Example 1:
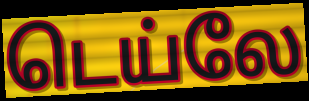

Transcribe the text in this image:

டெய்லே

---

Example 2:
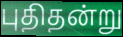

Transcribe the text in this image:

புதிதன்று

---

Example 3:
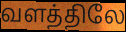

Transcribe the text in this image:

வளத்திலே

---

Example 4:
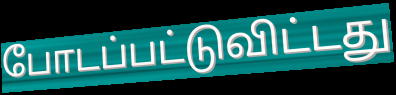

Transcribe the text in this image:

போடப்பட்டுவிட்டது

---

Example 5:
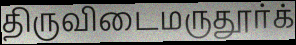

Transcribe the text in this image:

திருவிடைமருதூர்க்